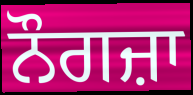
ਨੌਗਜ਼ਾ